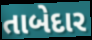
તાબેદાર